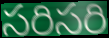
సరిసరి